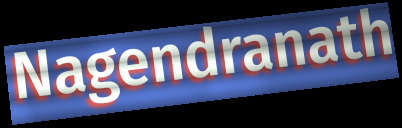
Nagendranath